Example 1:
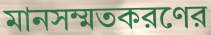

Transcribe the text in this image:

মানসম্মতকরণের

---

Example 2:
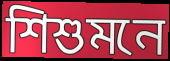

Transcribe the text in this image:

শিশুমনে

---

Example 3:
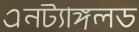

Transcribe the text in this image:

এনট্যাঙ্গলড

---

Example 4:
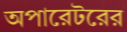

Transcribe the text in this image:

অপারেটরের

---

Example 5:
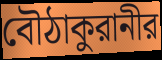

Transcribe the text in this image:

বৌঠাকুরানীর